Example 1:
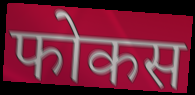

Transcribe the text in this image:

फोकस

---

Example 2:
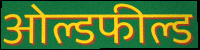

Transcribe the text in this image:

ओल्डफील्ड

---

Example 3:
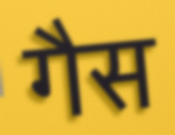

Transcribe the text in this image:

गैस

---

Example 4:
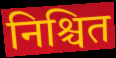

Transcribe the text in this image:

निश्चित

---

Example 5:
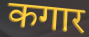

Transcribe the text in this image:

कगार